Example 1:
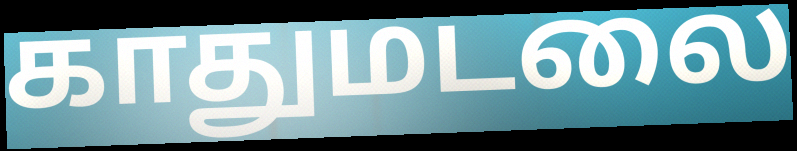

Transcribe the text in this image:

காதுமடலை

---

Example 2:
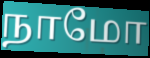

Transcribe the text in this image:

நாமோ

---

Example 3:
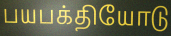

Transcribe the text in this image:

பயபக்தியோடு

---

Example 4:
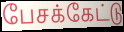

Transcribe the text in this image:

பேசக்கேட்டு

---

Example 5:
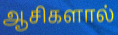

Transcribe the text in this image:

ஆசிகளால்